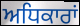
ਅਧਿਕਾਰਾਂ